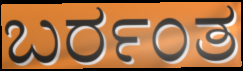
ಬರ್ರಂತ